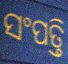
ସଂପତ୍ତି